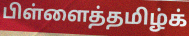
பிள்ளைத்தமிழ்க்